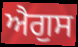
ਐਗੁਸ